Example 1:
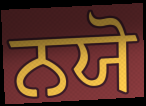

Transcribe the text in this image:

ਨਯੋ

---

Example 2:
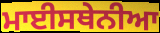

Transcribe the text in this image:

ਮਾਈਸਥੇਨੀਆ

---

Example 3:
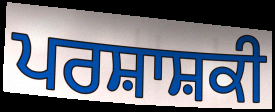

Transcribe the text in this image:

ਪਰਸ਼ਾਸ਼ਕੀ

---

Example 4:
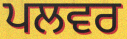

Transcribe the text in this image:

ਪਲਵਰ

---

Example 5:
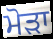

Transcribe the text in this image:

ਮੋੜਾ